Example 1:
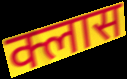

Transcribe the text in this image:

क्लास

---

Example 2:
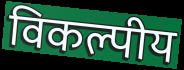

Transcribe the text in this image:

विकल्पीय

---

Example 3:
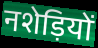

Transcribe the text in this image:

नशेड़ियों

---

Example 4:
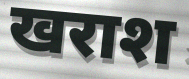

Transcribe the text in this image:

खराश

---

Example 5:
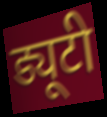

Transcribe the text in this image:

ड्यूटी